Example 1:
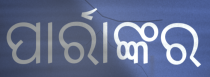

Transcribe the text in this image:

ପାର୍ରାଙ୍କର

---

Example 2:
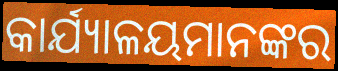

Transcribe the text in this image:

କାର୍ଯ୍ୟାଳୟମାନଙ୍କର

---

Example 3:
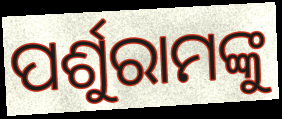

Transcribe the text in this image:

ପର୍ଶୁରାମଙ୍କୁ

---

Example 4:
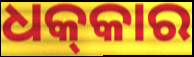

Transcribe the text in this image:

ଧକ୍‍କାର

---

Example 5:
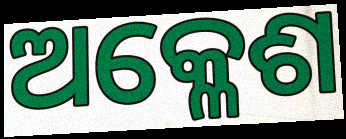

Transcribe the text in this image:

ଅକ୍ଳେଶ